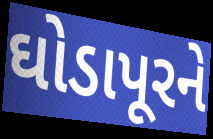
ઘોડાપૂરને